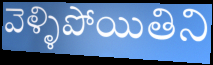
వెళ్ళిపోయితిని